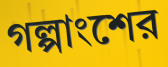
গল্পাংশের